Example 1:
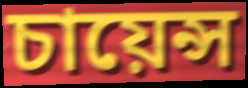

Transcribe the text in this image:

চায়েন্স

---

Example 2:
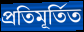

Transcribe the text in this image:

প্ৰতিমূৰ্তিত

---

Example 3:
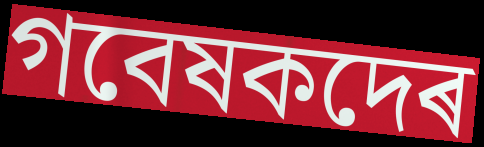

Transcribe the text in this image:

গবেষকদেৰ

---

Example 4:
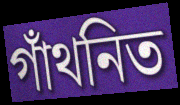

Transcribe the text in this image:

গাঁথনিত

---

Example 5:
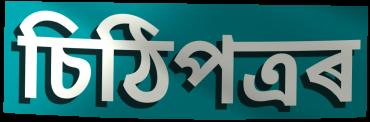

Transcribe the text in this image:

চিঠিপত্ৰৰ